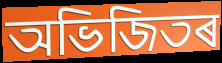
অভিজিতৰ